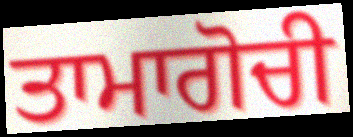
ਤਾਮਾਗੋਚੀ